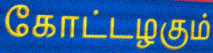
கோட்டழகும்